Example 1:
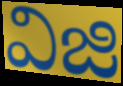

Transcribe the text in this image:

విజి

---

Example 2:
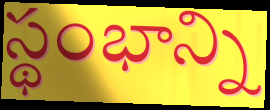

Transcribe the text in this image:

స్థంభాన్ని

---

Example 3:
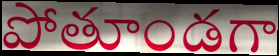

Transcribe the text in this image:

పోతూండగా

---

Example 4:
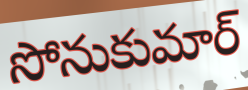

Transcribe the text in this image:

సోనుకుమార్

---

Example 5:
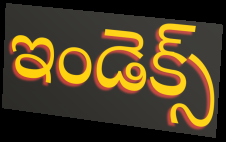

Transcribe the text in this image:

ఇండెక్స్